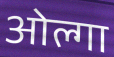
ओल्गा